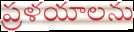
ప్రళయాలను